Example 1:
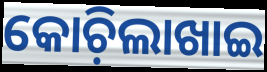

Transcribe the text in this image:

କୋଚ଼ିଲାଖାଇ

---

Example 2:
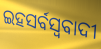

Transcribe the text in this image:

ଇହସର୍ବସ୍ୱବାଦୀ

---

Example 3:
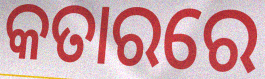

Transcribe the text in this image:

କତାରରେ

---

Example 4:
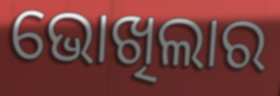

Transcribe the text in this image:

ଭୋଖିଲାର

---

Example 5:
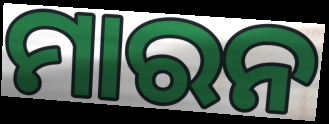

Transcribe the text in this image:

ମାରନ